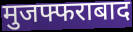
मुजफ्फराबाद